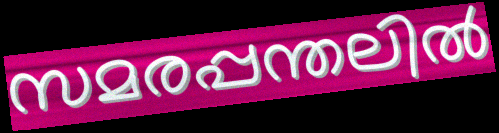
സമരപ്പന്തലിൽ